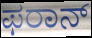
ಫರಾನ್